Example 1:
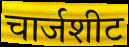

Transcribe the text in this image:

चार्जशीट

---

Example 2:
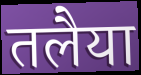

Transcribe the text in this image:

तलैया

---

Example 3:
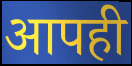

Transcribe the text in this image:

आपही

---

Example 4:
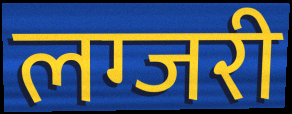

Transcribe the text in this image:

लग्जरी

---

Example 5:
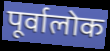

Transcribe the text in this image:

पूर्वालोक